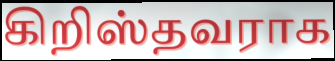
கிறிஸ்தவராக